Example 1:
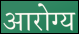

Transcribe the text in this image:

आरोग्य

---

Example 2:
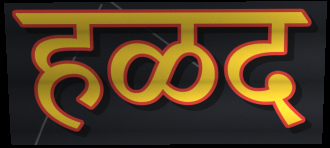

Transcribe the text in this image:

हळद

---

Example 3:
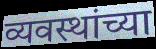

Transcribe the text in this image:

व्यवस्थांच्या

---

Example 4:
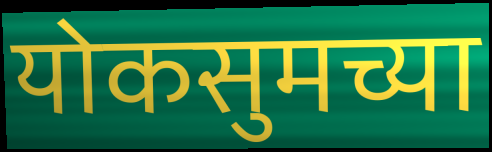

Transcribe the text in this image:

योकसुमच्या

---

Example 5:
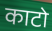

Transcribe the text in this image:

काटो